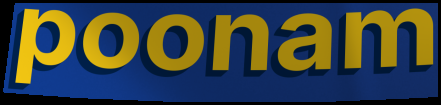
poonam